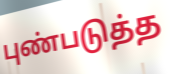
புண்படுத்த